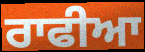
ਰਾਫੀਆ